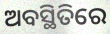
ଅବସ୍ଥିତିରେ